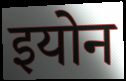
इयोन